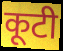
कूटी